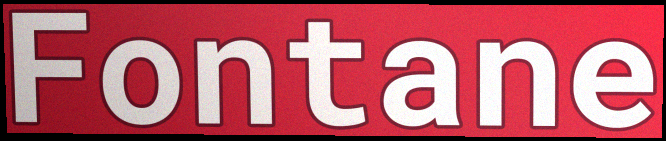
Fontane